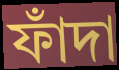
ফাঁদা